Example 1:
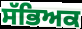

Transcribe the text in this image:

ਸੱਭਿਅਕ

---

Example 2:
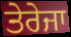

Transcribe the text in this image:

ਤੇਰੇਜਾ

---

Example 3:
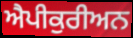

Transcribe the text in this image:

ਐਪੀਕੁਰੀਅਨ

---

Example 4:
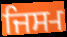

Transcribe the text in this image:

ਜਿਸ੍ਮ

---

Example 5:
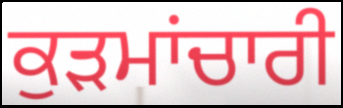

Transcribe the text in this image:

ਕੁੜਮਾਂਚਾਰੀ